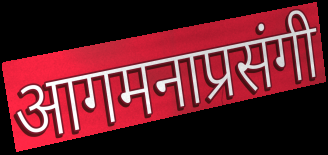
आगमनाप्रसंगी